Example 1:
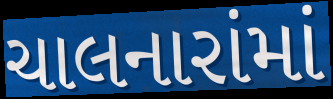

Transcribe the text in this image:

ચાલનારાંમાં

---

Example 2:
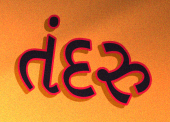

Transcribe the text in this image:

તંદરુ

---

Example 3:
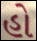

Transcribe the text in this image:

હો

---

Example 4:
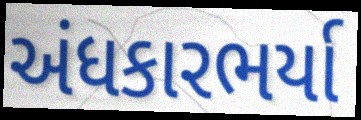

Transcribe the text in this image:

અંધકારભર્યા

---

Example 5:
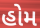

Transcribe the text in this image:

હોમ